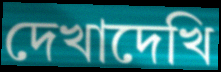
দেখাদেখি